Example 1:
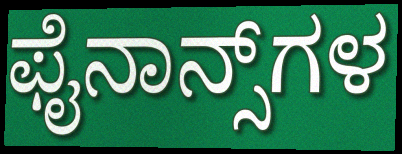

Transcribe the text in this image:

ಫೈನಾನ್ಸ್‌ಗಳ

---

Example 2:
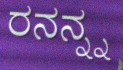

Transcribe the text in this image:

ರನನ್ನ್ನ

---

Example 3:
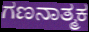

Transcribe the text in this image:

ಗಣನಾತ್ಮಕ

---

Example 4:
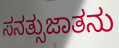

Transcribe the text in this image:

ಸನತ್ಸುಜಾತನು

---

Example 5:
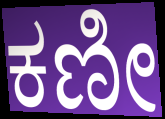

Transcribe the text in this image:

ಕಣೀ